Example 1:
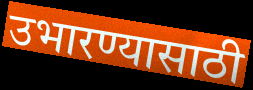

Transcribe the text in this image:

उभारण्यासाठी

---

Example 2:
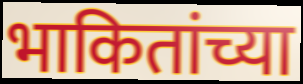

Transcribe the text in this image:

भाकितांच्या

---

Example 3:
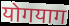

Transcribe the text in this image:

योगयाग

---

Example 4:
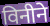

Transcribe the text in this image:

विनीने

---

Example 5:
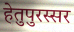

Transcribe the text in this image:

हेतुपुरस्सर